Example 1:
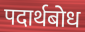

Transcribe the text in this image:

पदार्थबोध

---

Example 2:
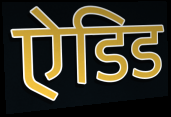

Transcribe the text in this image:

ऐडिड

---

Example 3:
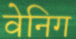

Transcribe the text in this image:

वेनिग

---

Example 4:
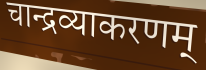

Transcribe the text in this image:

चान्द्रव्याकरणम्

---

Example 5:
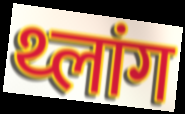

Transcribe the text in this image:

थ्लांग